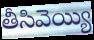
తీసివెయ్యి